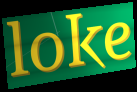
loke